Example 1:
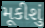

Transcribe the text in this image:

મૂકીશું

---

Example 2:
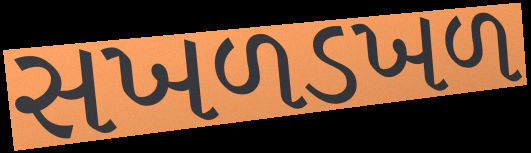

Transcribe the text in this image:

સખળડખળ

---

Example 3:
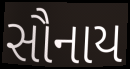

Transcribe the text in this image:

સૌનાય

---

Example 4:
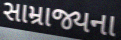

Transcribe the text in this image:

સામ્રાજ્યના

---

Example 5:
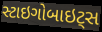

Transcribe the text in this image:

સ્ટાઇગોબાઇટ્સ